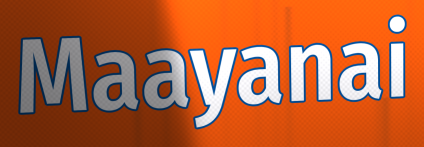
Maayanai